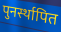
पुनर्स्थापित